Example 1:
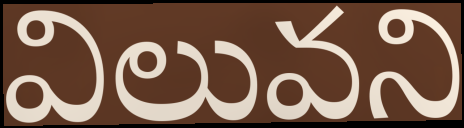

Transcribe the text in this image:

విలువని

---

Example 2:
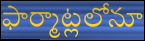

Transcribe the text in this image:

ఫార్మాట్లలోనూ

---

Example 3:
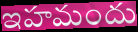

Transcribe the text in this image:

ఇహమందు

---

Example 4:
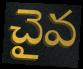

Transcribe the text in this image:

చైవ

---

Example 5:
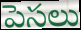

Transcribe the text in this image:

పెసలు